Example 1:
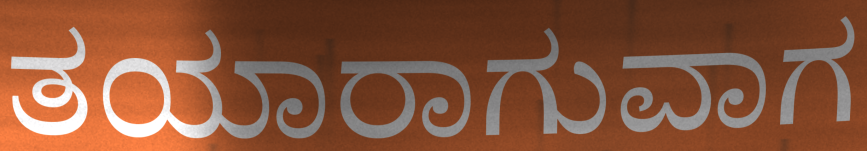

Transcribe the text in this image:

ತಯಾರಾಗುವಾಗ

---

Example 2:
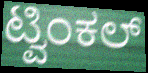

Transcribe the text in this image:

ಟ್ವಿಂಕಲ್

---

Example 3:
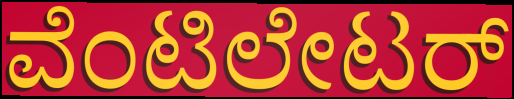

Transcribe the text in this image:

ವೆಂಟಿಲೇಟರ್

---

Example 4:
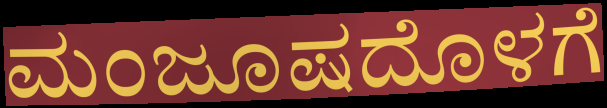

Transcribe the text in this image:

ಮಂಜೂಷದೊಳಗೆ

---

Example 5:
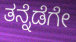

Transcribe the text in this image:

ತನ್ನೆಡೆಗೇ